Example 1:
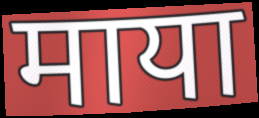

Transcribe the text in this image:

माया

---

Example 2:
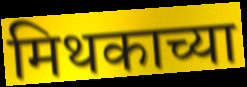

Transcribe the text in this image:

मिथकाच्या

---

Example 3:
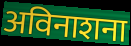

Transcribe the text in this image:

अविनाशना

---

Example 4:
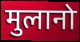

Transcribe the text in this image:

मुलानो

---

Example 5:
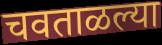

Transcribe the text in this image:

चवताळल्या